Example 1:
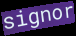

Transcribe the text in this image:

signor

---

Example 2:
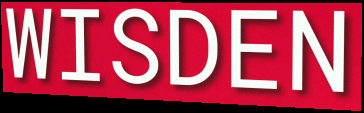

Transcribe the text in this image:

WISDEN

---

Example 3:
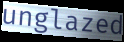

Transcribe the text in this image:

unglazed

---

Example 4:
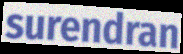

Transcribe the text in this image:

surendran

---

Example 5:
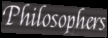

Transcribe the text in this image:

Philosophers